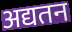
अद्यतन